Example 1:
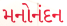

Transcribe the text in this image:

મનોનંદન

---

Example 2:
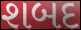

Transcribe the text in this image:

શબદ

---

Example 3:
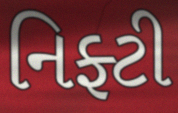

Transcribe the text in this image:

નિફ્ટી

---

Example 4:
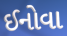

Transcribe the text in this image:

ઈનોવા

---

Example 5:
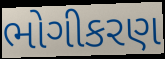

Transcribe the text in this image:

ભોગીકરણ